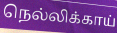
நெல்லிக்காய்